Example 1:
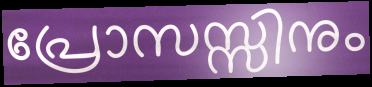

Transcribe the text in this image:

പ്രോസസ്സിനും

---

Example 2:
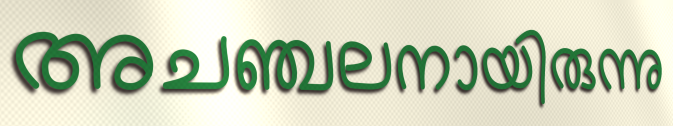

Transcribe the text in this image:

അചഞ്ചലനായിരുന്നു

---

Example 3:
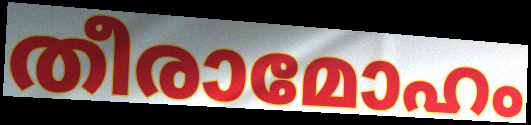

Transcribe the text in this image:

തീരാമോഹം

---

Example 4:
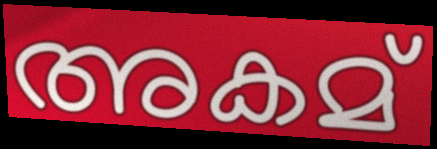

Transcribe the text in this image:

അകമ്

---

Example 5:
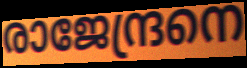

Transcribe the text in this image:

രാജേന്ദ്രനെ